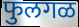
फुलगळ